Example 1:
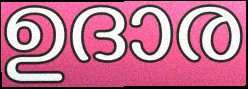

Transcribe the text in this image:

ഉദാര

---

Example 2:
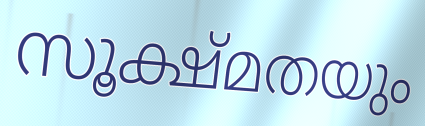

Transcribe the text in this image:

സൂക്ഷ്മതയും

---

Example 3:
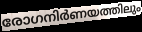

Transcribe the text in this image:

രോഗനിർണയത്തിലും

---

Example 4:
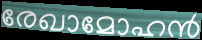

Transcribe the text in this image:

രേഖാമോഹൻ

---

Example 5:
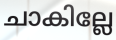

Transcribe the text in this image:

ചാകില്ലേ